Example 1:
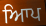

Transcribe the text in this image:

ਆਿਪ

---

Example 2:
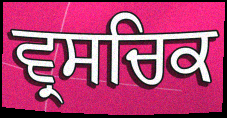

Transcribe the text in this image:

ਵ੍ਰਸਚਿਕ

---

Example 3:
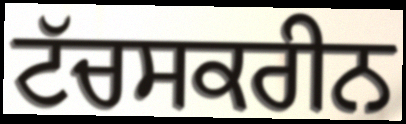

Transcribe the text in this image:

ਟੱਚਸਕਰੀਨ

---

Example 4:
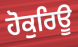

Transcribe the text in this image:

ਹੋਕੁਰਿਊ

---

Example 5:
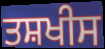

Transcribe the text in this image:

ਤਸ਼ਖੀਸ